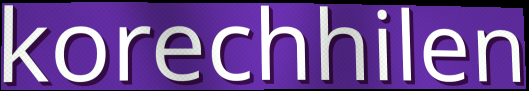
korechhilen